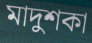
মাদুশকা